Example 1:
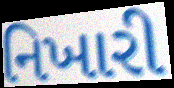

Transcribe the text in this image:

નિખારી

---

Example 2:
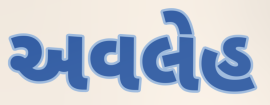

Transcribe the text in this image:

અવલેહ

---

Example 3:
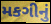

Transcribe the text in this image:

મકગીનું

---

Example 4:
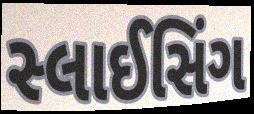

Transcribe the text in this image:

સ્લાઈસિંગ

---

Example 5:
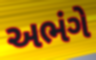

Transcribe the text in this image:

અભંગે